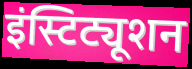
इंस्टिट्यूशन